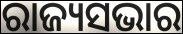
ରାଜ୍ୟସଭାର